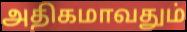
அதிகமாவதும்